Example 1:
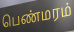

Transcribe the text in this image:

பெண்மரம்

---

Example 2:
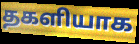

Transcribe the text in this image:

தகளியாக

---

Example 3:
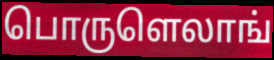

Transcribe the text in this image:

பொருளெலாங்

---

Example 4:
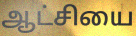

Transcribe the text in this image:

ஆட்சியை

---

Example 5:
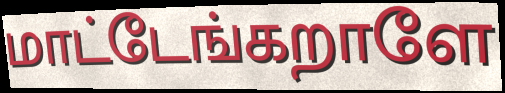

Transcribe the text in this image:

மாட்டேங்கறாளே